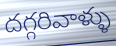
దగ్గరివాళ్ళు